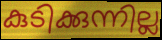
കുടിക്കുന്നില്ല